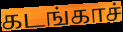
கடங்காச்